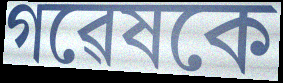
গৱেষকে